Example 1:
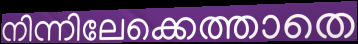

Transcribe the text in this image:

നിന്നിലേക്കെത്താതെ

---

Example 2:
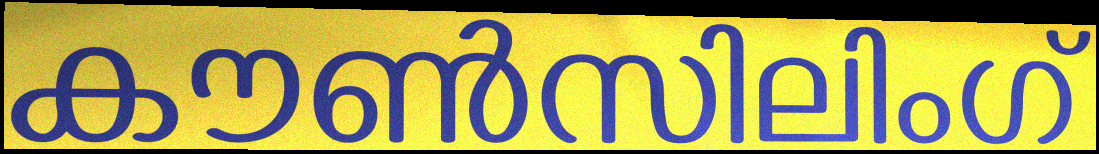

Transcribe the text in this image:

കൗൺസിലിംഗ്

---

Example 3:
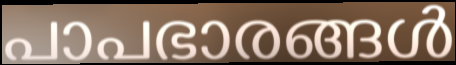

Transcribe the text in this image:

പാപഭാരങ്ങൾ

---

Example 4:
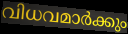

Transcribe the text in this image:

വിധവമാർക്കും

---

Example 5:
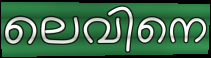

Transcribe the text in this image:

ലെവിനെ